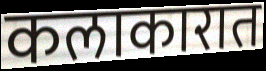
कलाकारात